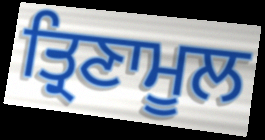
ਤ੍ਰਿਣਾਮੂਲ